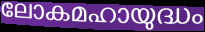
ലോകമഹായുദ്ധം